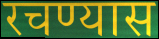
रचण्यास